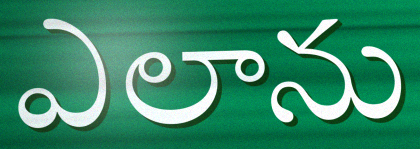
ఎలాను